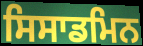
ਸਿਸਾਡਮਿਨ